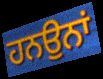
ਹਨਉਨਾਂ